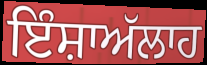
ਇੰਸ਼ਾਅੱਲਾਹ